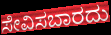
ಸೇವಿಸಬಾರದು